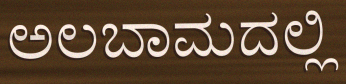
ಅಲಬಾಮದಲ್ಲಿ